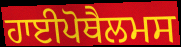
ਹਾਈਪੋਥੈਲਮਸ